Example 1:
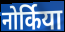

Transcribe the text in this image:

नोर्किया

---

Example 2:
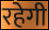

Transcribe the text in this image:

रहेगी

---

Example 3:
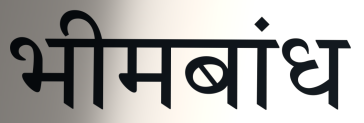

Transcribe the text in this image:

भीमबांध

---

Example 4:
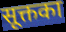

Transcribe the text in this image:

सूक्तका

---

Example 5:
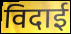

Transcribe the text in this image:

विदाई